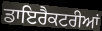
ਡਾਇਰੈਕਟਰੀਆਂ